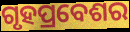
ଗୃହପ୍ରବେଶର